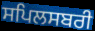
ਸਪਿਲਸਬਰੀ